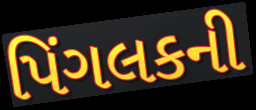
પિંગલકની